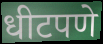
धीटपणे